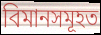
বিমানসমূহত